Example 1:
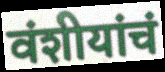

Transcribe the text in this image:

वंशीयांचं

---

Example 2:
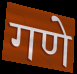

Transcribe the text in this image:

गणे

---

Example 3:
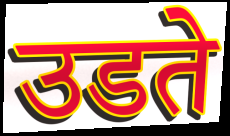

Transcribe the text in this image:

उडते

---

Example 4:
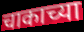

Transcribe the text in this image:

चाकाच्या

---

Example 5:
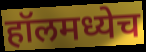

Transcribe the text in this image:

हॉलमध्येच